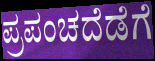
ಪ್ರಪಂಚದೆಡೆಗೆ